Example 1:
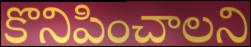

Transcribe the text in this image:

కొనిపించాలని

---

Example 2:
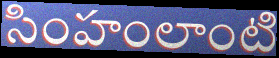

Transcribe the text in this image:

సింహంలాంటి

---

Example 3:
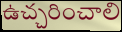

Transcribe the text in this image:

ఉచ్చరించాలి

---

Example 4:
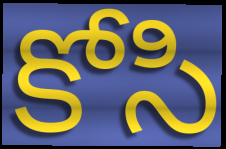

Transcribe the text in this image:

కోసి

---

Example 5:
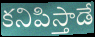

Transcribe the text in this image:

కనిపిస్తాడే